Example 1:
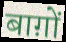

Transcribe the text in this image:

बाग़ों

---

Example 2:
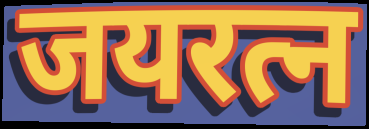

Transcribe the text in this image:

जयरत्न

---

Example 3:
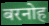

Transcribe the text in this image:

बरनोह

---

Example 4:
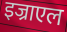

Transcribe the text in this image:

इज्राएल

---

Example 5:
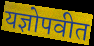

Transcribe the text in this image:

यज्ञोपवीत